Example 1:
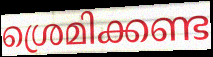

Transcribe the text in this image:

ശ്രെമിക്കണ്ട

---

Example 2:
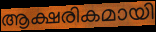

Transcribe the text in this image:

ആക്ഷരികമായി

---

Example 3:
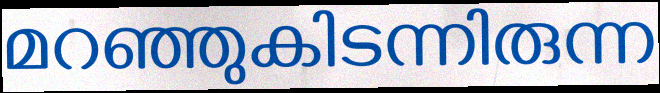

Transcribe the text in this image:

മറഞ്ഞുകിടന്നിരുന്ന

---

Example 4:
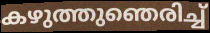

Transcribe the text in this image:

കഴുത്തുഞെരിച്ച്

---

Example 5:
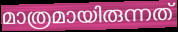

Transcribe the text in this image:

മാത്രമായിരുന്നത്